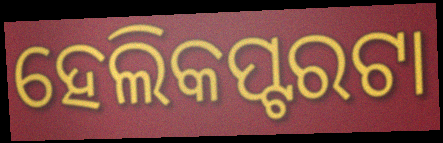
ହେଲିକପ୍ଟରଟା